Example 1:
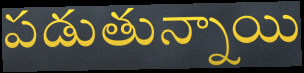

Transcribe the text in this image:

పడుతున్నాయి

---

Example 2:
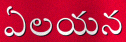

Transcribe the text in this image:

ఏలయన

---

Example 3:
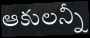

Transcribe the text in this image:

ఆకులన్నీ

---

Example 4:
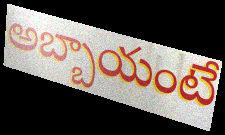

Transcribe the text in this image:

అబ్బాయంటే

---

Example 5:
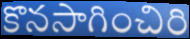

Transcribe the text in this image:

కొనసాగించిరి